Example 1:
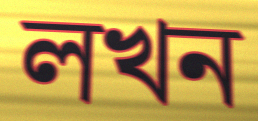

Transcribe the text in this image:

লখন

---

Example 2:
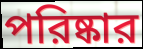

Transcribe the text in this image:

পরিষ্কার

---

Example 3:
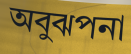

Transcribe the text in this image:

অবুঝপনা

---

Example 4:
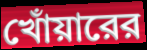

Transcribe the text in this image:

খোঁয়ারের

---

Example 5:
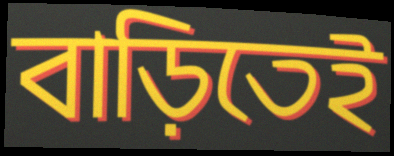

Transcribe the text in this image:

বাড়িতেই